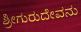
ಶ್ರೀಗುರುದೇವನು